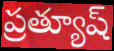
ప్రత్యూష్